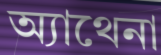
অ্যাথেনা